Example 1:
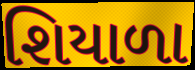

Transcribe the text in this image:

શિયાળા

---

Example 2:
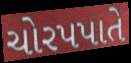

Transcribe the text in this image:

ચોરપપાતે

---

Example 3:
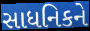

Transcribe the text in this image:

સાધનિકને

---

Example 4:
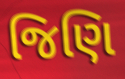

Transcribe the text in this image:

જિણિ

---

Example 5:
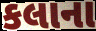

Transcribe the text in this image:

કલાના